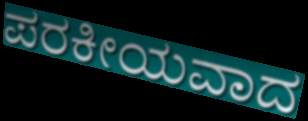
ಪರಕೀಯವಾದ